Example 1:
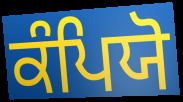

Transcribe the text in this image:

ਕੰਪਿਯੋ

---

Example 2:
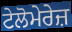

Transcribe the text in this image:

ਟੇਲੋਮੇਰੇਜ਼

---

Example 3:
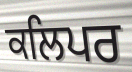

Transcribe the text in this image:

ਕਲਿਪਰ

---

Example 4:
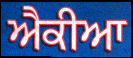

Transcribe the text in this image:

ਐਕੀਆ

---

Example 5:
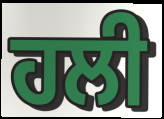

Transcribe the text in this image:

ਹਲੀ